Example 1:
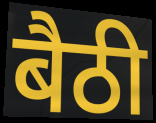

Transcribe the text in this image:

बैठी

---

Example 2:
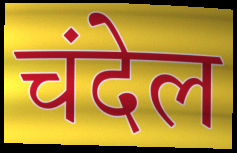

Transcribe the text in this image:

चंदेल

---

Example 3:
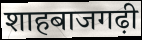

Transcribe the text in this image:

शाहबाजगढ़ी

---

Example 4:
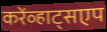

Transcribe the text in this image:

करेंव्हाट्सएप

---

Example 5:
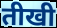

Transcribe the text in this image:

तीखी